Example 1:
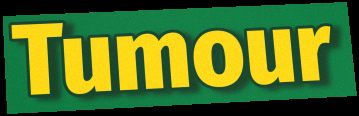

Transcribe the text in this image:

Tumour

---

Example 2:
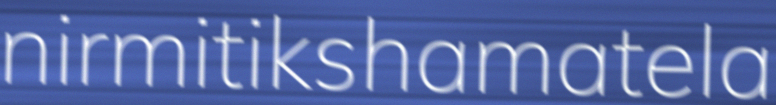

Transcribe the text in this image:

nirmitikshamatela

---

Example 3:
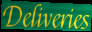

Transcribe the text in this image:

Deliveries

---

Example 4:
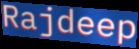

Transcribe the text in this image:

Rajdeep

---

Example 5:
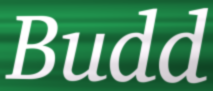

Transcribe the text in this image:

Budd